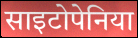
साइटोपेनिया